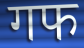
गफ